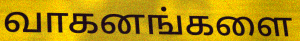
வாகனங்களை